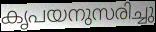
കൃപയനുസരിച്ചു